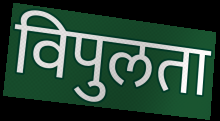
विपुलता